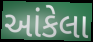
આંકેલા